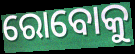
ରୋବୋକୁ